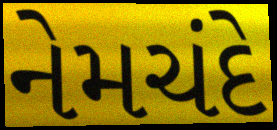
નેમચંદે